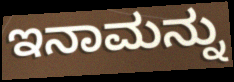
ಇನಾಮನ್ನು